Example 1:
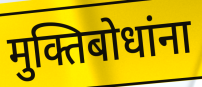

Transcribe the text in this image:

मुक्तिबोधांना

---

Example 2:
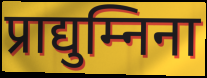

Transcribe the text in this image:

प्राद्युम्निना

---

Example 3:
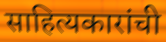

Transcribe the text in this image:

साहित्यकारांची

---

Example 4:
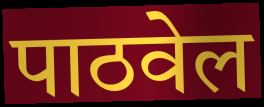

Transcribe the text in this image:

पाठवेल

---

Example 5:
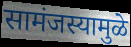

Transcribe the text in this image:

सामंजस्यामुळे